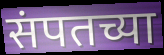
संपतच्या